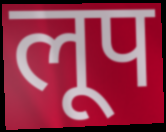
लूप